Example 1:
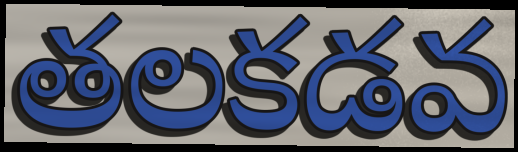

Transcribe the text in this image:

తలకడవ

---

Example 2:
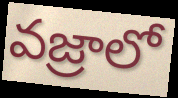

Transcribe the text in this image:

వజ్రాలో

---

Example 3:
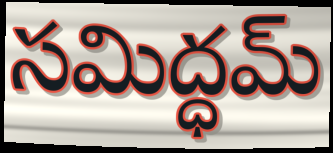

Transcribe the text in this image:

సమిద్ధమ్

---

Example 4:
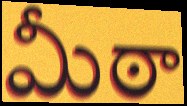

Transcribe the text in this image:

మీఠా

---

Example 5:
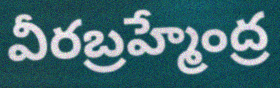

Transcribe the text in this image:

వీరబ్రహ్మేంద్ర